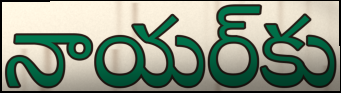
నాయర్‌కు